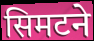
सिमटने